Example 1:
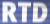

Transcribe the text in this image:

RTD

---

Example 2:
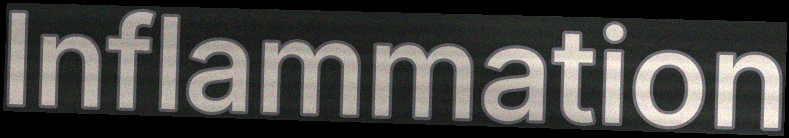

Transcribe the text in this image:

Inflammation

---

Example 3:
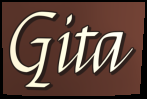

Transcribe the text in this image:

Gita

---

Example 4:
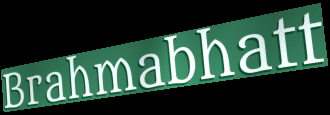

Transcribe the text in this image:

Brahmabhatt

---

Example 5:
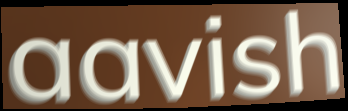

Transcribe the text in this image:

aavish